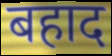
बहाद